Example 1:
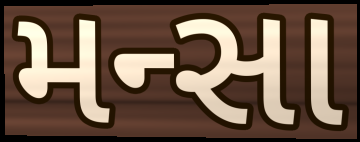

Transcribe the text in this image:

મન્સા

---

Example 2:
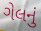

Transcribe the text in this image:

ગેલનું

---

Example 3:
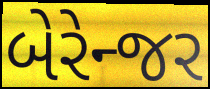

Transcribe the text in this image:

બેરેન્જર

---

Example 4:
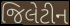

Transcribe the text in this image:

જિલેટીન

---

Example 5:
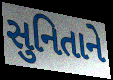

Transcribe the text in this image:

સુનિતાને